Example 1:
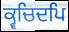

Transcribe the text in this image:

ਕ੍ਵਚਿਦਪਿ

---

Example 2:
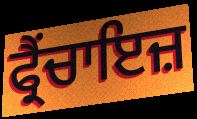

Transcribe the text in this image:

ਫ੍ਰੈਂਚਾਇਜ਼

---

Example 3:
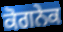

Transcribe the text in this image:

ਕੋਗਨੇਕ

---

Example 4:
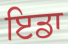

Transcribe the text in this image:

ਇਡਾ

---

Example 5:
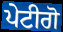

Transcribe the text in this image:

ਪੇਟੀਗੋ